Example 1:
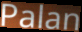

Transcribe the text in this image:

Palan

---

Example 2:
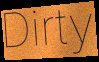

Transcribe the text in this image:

Dirty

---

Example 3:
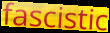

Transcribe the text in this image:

fascistic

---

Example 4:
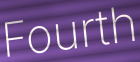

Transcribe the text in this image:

Fourth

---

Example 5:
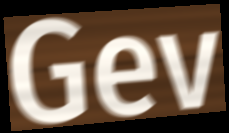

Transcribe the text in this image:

Gev